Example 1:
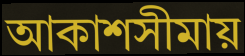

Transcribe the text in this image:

আকাশসীমায়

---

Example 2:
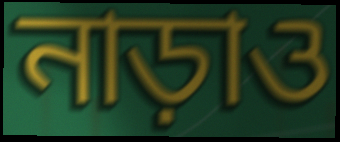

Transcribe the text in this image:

নাড়াও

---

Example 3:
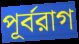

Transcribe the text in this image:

পূর্বরাগ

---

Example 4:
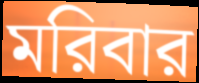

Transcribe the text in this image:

মরিবার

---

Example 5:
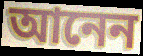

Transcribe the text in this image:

আনেন